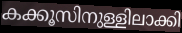
കക്കൂസിനുള്ളിലാക്കി